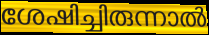
ശേഷിച്ചിരുന്നാൽ